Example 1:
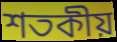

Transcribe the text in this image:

শতকীয়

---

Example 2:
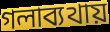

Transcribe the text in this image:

গলাব্যথায়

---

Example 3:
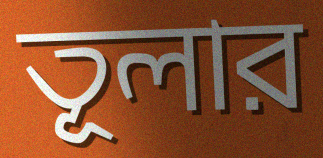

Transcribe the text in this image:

তূলার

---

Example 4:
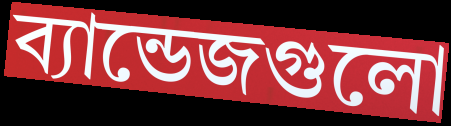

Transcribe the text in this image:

ব্যান্ডেজগুলো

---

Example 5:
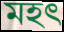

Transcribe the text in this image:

মহত্‍